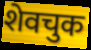
शेवचुक